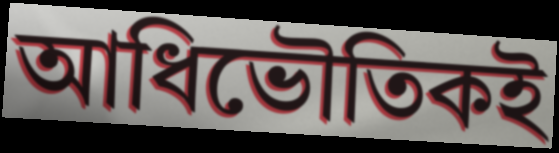
আধিভৌতিকই